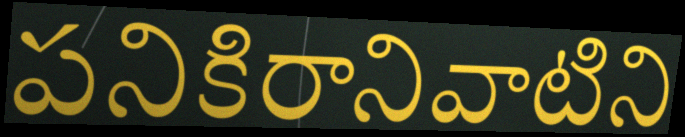
పనికిరానివాటిని